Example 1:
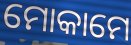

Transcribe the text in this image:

ମୋକାମେ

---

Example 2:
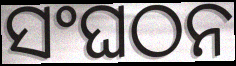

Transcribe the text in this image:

ସଂଘଠନ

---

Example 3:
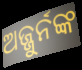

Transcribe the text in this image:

ଅଜ୍ଜୁର୍ନଙ୍କ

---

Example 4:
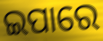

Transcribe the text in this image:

ଇପାରେ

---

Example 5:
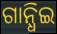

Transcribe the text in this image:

ଗାନ୍ଧିଇ